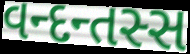
વન્દન્તસ્સ